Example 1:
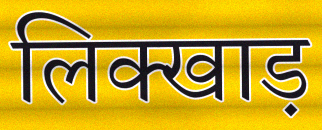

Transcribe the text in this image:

लिक्खाड़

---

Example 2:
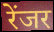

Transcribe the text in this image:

रेंजर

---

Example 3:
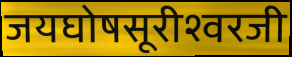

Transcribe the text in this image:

जयघोषसूरीश्वरजी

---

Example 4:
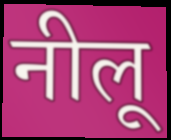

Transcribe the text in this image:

नीलू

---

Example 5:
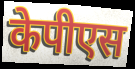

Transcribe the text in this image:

केपीएस